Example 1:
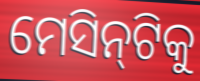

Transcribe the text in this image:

ମେସିନ୍‍ଟିକୁ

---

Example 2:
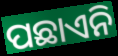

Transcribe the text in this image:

ପଛାଏନି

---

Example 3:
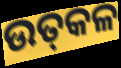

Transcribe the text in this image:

ଉତ୍‌କଳ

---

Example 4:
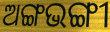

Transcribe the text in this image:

ଅଙ୍ଗଭଙ୍ଗୀ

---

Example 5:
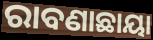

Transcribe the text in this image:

ରାବଣାଛାୟା